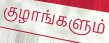
குழாங்களும்